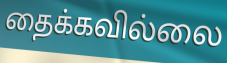
தைக்கவில்லை